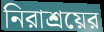
নিরাশ্রয়ের